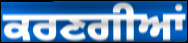
ਕਰਣਗੀਆਂ